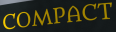
COMPACT